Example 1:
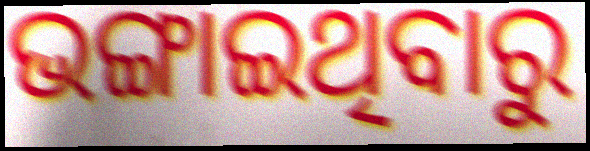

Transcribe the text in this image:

ଭଙ୍ଗାଇଥିବାରୁ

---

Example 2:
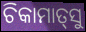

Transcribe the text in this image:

ଚିକାମାତ୍‌ସୁ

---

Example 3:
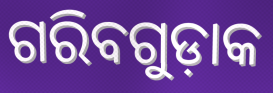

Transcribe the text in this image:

ଗରିବଗୁଡ଼ାକ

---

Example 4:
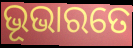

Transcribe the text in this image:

ଭୂଭାରତେ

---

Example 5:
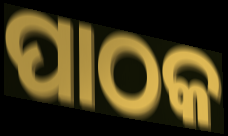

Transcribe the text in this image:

ପାଠକ